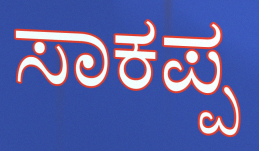
ಸಾಕಪ್ಪ